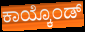
ಕಾಯ್ಕೊಂಡ್